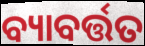
ବ୍ୟାବର୍ତ୍ତତ